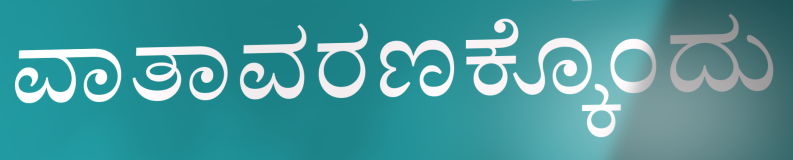
ವಾತಾವರಣಕ್ಕೊಂದು